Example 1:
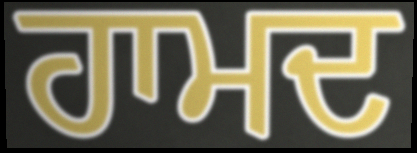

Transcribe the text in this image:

ਹਾਮਦ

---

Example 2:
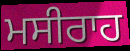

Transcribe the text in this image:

ਮਸੀਰਾਹ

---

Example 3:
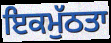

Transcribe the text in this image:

ਇਕਮੁੱਠਤਾ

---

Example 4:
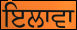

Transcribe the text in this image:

ਇਲਾਵਾ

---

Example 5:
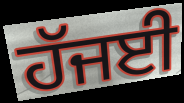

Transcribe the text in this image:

ਹੱਜਈ